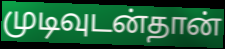
முடிவுடன்தான்